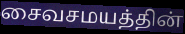
சைவசமயத்தின்